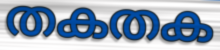
തകതക